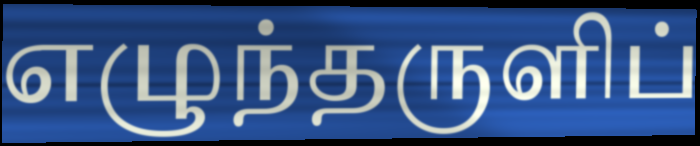
எழுந்தருளிப்